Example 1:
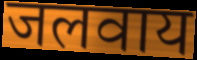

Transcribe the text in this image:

जलवाय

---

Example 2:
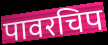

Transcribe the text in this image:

पावरचिप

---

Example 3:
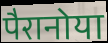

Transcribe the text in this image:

पैरानोया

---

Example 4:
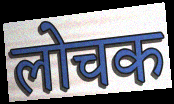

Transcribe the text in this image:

लोचक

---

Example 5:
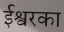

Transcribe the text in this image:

ईश्वरका